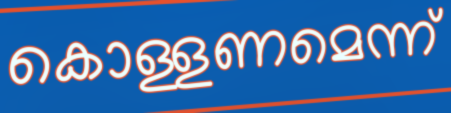
കൊള്ളണമെന്ന്